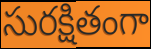
సురక్షితంగా